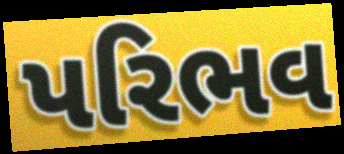
પરિભવ